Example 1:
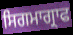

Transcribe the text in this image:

ਸਿਗਮਾਗ੍ਰਾਫ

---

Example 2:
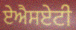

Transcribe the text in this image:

ਏਐਸਏਟੀ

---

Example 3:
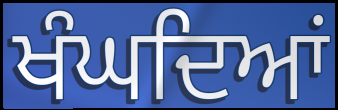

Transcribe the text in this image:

ਖੰਘਦਿਆਂ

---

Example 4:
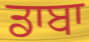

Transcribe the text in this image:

ਡਾਬਾ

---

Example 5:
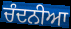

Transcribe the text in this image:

ਚੰਦਨੀਆ